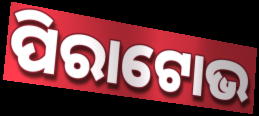
ପିରାଟୋଭ